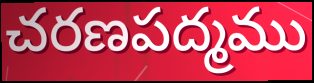
చరణపద్మము